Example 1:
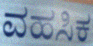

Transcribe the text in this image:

ವಹಸಿಕ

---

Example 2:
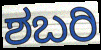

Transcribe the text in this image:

ಶಬರಿ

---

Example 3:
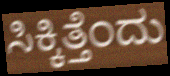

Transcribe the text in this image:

ಸಿಕ್ಕಿತ್ತೆಂದು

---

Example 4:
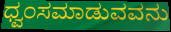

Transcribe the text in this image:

ಧ್ವಂಸಮಾಡುವವನು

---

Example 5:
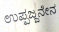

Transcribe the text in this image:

ಉಪ್ಪಜ್ಜನೇನ